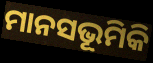
ମାନସଭୂମିକି